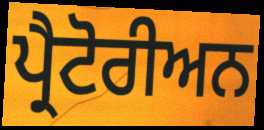
ਪ੍ਰੈਟੋਰੀਅਨ